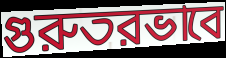
গুরুতরভাবে